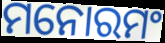
ମନୋରମଂ